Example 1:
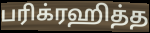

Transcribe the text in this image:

பரிக்ரஹித்த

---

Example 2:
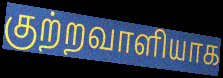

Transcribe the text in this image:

குற்றவாளியாக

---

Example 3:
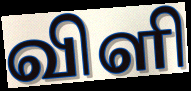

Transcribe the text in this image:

விளி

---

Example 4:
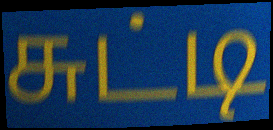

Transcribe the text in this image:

சுட்டி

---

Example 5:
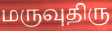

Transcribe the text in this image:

மருவுதிரு